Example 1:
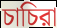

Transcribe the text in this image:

চাচিরা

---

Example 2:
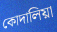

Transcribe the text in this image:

কোদালিয়া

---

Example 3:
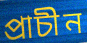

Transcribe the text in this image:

প্রাচীন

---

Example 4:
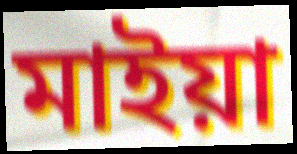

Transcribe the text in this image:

মাইয়া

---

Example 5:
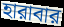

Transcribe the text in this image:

হারাবার